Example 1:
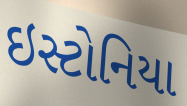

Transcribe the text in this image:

ઇસ્ટોનિયા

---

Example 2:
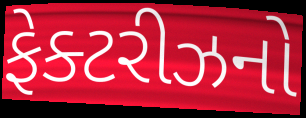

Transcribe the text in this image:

ફેક્ટરીઝનો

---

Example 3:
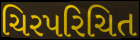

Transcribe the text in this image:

ચિરપરિચિત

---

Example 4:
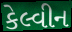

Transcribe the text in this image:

કેલ્વીન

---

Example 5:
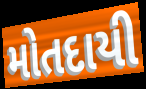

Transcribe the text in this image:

મોતદાયી